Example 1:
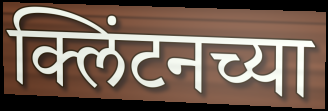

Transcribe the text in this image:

क्लिंटनच्या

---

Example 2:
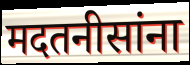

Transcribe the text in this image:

मदतनीसांना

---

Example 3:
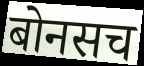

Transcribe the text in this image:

बोनसच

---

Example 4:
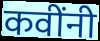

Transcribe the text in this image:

कवींनी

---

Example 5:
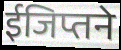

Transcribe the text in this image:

ईजिप्तने